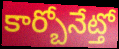
కార్బోనేట్తో